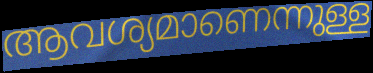
ആവശ്യമാണെന്നുള്ള